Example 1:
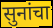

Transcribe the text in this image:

सुनांचा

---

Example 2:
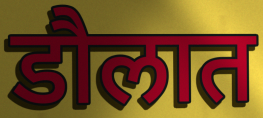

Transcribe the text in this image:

डौलात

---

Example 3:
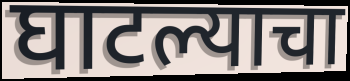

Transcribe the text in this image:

घाटल्याचा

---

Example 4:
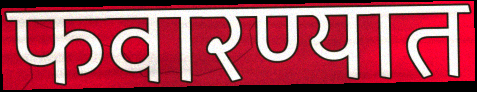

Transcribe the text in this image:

फवारण्यात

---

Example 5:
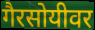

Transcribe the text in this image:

गैरसोयीवर